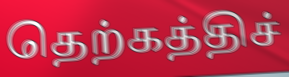
தெற்கத்திச்